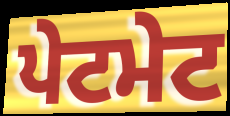
ਪੇਟਮੇਟ